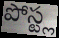
పోస్ట్ల